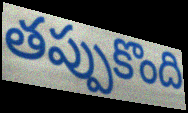
తప్పుకొంది